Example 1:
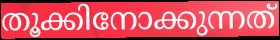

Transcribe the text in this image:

തൂക്കിനോക്കുന്നത്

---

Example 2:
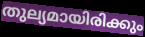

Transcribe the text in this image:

തുല്യമായിരിക്കും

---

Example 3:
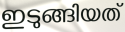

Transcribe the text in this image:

ഇടുങ്ങിയത്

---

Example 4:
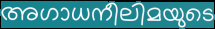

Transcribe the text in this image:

അഗാധനീലിമയുടെ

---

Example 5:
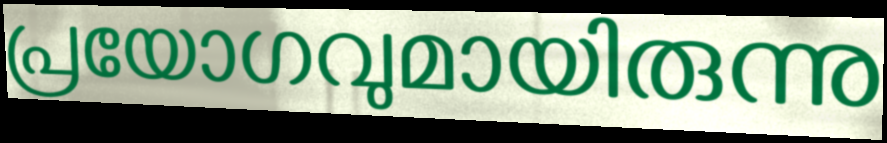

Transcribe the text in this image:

പ്രയോഗവുമായിരുന്നു